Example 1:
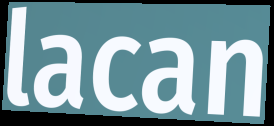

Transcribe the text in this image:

lacan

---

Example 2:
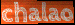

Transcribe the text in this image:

chalao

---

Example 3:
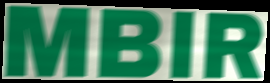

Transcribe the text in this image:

MBIR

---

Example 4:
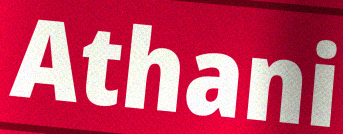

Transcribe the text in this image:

Athani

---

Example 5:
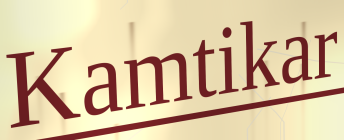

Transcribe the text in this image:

Kamtikar